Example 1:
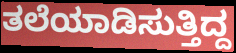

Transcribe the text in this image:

ತಲೆಯಾಡಿಸುತ್ತಿದ್ದ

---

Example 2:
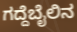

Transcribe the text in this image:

ಗದ್ದೆಬೈಲಿನ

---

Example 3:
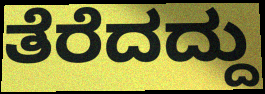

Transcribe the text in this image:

ತೆರೆದದ್ದು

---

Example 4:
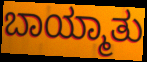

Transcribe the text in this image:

ಬಾಯ್ಮಾತು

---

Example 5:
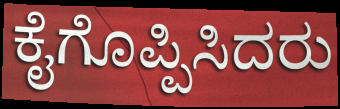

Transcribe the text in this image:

ಕೈಗೊಪ್ಪಿಸಿದರು